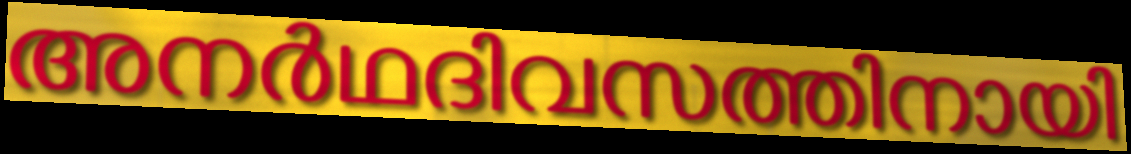
അനർഥദിവസത്തിനായി